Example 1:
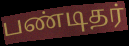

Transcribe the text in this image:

பண்டிதர்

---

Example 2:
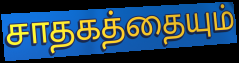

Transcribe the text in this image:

சாதகத்தையும்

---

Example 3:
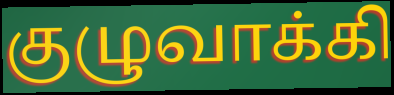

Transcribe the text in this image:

குழுவாக்கி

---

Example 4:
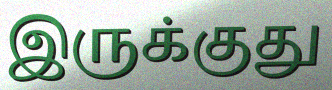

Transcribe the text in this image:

இருக்குது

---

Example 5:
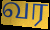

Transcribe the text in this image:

வர